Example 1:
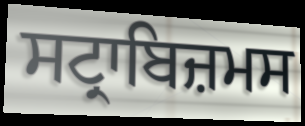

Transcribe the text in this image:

ਸਟ੍ਰਾਬਿਜ਼ਮਸ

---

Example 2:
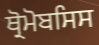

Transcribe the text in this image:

ਥ੍ਰੋਮੋਬਸਿਸ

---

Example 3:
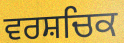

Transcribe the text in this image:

ਵਰਸ਼ਚਿਕ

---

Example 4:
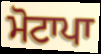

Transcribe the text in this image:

ਮੋਟਾਪਾ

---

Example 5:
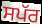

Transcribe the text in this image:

ਸਪੱਰ